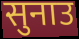
सुनाउ